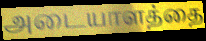
அடையாளத்தை